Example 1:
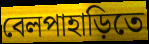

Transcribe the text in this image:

বেলপাহাড়িতে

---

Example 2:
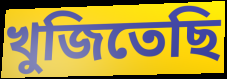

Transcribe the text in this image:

খুজিতেছি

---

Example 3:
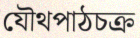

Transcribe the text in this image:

যৌথপাঠচক্র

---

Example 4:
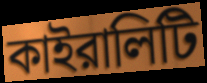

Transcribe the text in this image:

কাইরালিটি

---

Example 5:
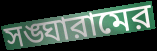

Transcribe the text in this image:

সঙ্ঘারামের